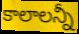
కాలాలన్నీ